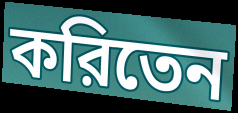
করিতেন